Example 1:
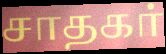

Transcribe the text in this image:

சாதகர்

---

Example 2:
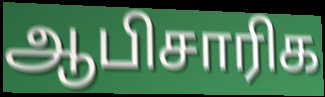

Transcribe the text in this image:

ஆபிசாரிக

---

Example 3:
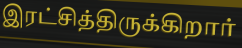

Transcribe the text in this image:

இரட்சித்திருக்கிறார்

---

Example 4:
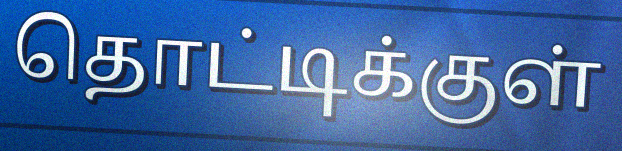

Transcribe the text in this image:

தொட்டிக்குள்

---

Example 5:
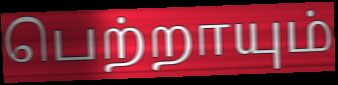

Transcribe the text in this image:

பெற்றாயும்